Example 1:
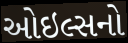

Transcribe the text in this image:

ઓઇલ્સનો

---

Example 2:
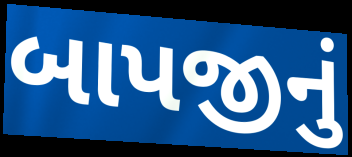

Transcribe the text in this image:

બાપજીનું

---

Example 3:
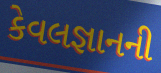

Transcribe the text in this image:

કેવલજ્ઞાનની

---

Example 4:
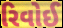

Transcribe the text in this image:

રિવોઈ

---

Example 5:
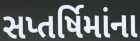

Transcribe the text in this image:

સપ્તર્ષિમાંના